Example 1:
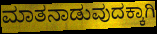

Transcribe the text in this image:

ಮಾತನಾಡುವುದಕ್ಕಾಗಿ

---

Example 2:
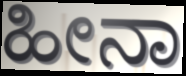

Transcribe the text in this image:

ಹೀನಾ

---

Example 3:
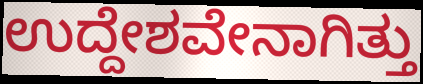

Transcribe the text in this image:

ಉದ್ದೇಶವೇನಾಗಿತ್ತು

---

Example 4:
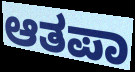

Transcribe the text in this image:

ಆತಪಾ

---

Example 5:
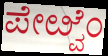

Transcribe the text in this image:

ಪೇೞ್ವೆಂ